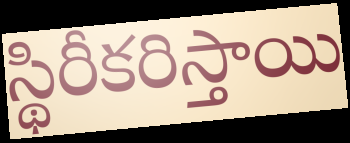
స్థిరీకరిస్తాయి